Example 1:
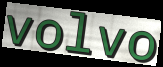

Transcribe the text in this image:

volvo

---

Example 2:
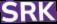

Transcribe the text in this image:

SRK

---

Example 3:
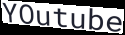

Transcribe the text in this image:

YOutube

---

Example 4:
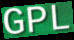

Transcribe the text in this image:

GPL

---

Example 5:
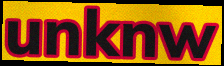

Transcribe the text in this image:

unknw